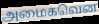
அமைகவென